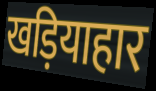
खड़ियाहार